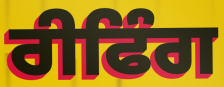
ਰੀਫਿੰਗ